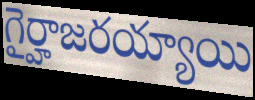
గైర్హాజరయ్యాయి